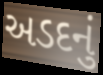
અડદનું